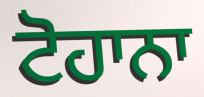
ਟੋਹਾਨਾ